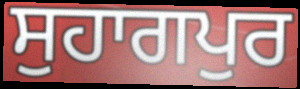
ਸੁਹਾਗਪੁਰ